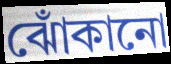
ঝোঁকানো